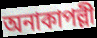
অনাকাপল্লী